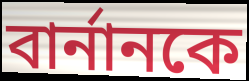
বাৰ্নানকে